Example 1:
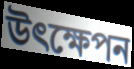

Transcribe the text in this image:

উৎক্ষেপন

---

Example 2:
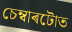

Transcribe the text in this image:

চেম্বাৰটোত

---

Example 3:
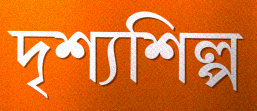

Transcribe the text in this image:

দৃশ্যশিল্প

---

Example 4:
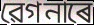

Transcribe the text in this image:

ৱেগনাৰে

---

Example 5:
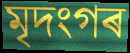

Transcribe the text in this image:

মৃদংগৰ